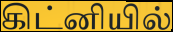
கிட்னியில்